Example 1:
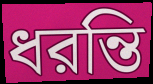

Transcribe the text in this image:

ধরন্তি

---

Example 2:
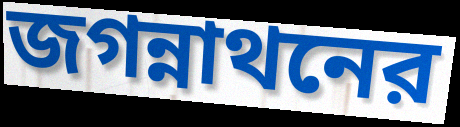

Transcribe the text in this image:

জগন্নাথনের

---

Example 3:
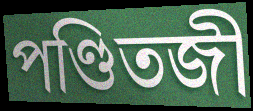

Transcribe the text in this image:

পণ্ডিতজী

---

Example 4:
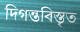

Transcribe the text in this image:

দিগন্তবিস্তৃত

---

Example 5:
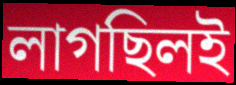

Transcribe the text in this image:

লাগছিলই